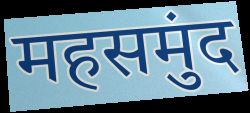
महसमुंद